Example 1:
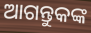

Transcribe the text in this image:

ଆଗନ୍ତୁକଙ୍କ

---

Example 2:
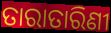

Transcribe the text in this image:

ତାରାତାରିଣୀ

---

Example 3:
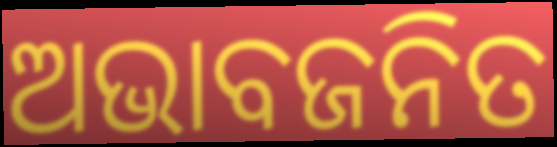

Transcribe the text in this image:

ଅଭାବଜନିତ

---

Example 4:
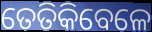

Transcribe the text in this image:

ତେତିକିବେଳେ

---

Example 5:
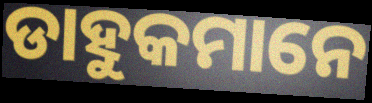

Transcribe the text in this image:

ଡାହୁକମାନେ